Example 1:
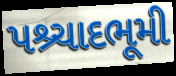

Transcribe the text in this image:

પશ્ર્ચાદભૂમી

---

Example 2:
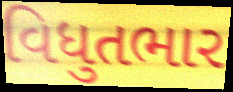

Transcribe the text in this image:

વિધુતભાર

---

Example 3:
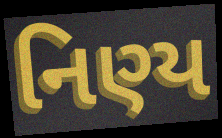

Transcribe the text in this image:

નિણ્ય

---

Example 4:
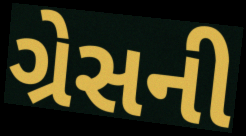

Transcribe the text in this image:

ગ્રેસની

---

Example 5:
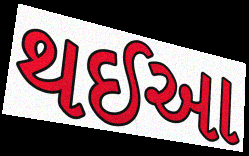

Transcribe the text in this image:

થઈઆ